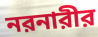
নরনারীর